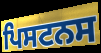
ਪਿਸਟਨਸ